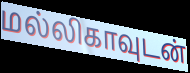
மல்லிகாவுடன்